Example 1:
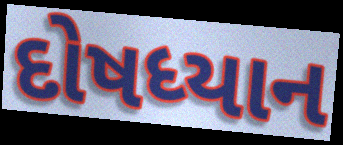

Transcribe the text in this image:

દોષધ્યાન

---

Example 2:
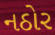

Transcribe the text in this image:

નઠોર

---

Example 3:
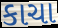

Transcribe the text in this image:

કાચા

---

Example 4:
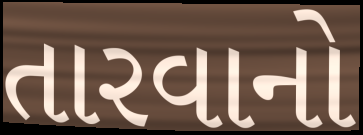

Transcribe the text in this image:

તારવાનો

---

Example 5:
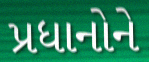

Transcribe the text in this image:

પ્રધાનોને